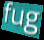
fug